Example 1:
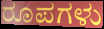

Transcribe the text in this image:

ರೂಪಗಳು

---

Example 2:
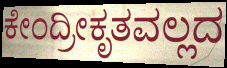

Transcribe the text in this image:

ಕೇಂದ್ರೀಕೃತವಲ್ಲದ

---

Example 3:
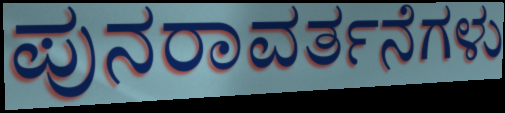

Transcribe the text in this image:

ಪುನರಾವರ್ತನೆಗಳು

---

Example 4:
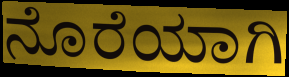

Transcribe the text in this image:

ನೊರೆಯಾಗಿ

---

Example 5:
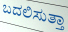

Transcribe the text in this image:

ಬದಲಿಸುತ್ತಾ